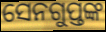
ସେନଗୁପ୍ତଙ୍କ